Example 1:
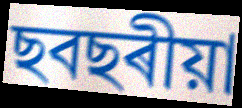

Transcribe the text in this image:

ছবছৰীয়া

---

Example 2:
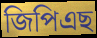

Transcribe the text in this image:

জিপিএছ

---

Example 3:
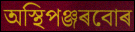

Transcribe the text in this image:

অস্থিপঞ্জৰবোৰ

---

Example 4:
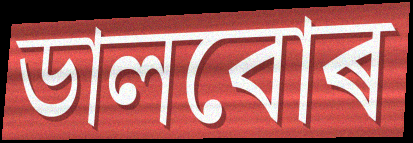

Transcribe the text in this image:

ডালবোৰ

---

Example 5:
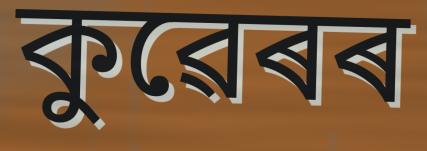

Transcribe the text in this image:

কুৱেৰৰ